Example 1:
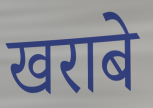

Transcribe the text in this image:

खराबे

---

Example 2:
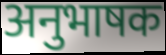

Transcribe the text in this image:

अनुभाषक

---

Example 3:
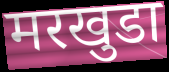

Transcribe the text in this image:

मरखुडा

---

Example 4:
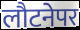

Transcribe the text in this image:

लौटनेपर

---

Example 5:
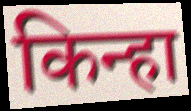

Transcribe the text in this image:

किन्हा